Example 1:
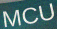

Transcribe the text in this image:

MCU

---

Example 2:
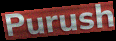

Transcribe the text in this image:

Purush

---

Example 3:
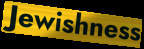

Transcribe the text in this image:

Jewishness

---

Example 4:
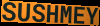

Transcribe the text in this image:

SUSHMEY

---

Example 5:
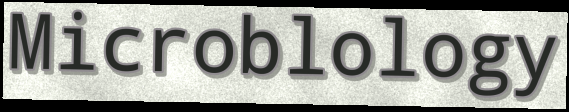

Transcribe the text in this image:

Microblology